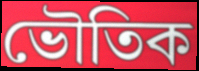
ভৌতিক